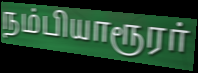
நம்பியாரூரர்